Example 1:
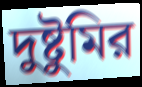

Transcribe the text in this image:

দুষ্টুমির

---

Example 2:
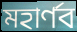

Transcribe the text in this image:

মহার্ণব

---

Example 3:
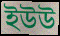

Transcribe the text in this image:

ইউউ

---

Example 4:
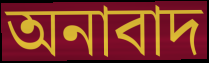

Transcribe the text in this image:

অনাবাদ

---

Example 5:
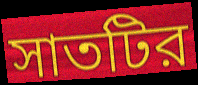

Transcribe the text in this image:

সাতটির